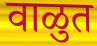
वाळुत